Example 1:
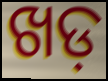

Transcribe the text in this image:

ଖଡ଼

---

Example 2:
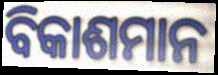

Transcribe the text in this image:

ବିକାଶମାନ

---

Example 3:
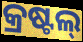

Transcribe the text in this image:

କ୍ରଷ୍ଟଲ୍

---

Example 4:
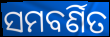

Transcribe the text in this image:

ସମବର୍ଣିତ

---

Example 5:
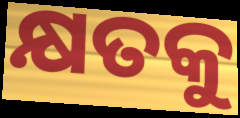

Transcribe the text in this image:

କ୍ଷତକୁ